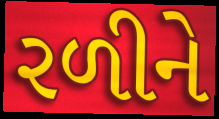
રળીને